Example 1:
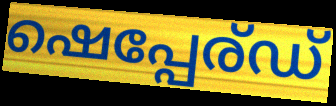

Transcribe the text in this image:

ഷെപ്പേര്ഡ്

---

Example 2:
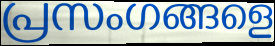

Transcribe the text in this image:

പ്രസംഗങ്ങളെ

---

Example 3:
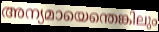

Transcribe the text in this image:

അന്യമായെന്തെങ്കിലും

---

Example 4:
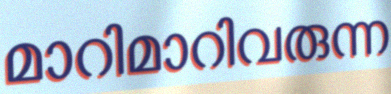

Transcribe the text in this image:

മാറിമാറിവരുന്ന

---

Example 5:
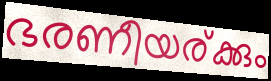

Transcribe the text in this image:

ഭരണീയര്ക്കും